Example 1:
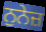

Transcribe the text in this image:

ਨੁਨੇਜ਼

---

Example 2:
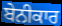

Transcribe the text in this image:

ਬੇਨੀਕਾਰ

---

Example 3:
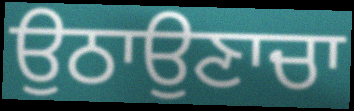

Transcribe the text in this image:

ਉਠਾਉਣਾਚਾ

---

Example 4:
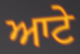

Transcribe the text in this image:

ਆਟੇ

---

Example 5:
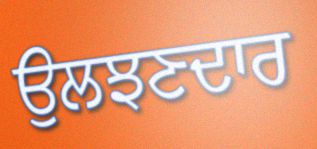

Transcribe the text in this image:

ਉਲਝਣਦਾਰ